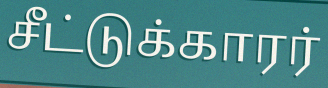
சீட்டுக்காரர்